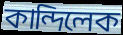
কান্দিলেক